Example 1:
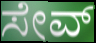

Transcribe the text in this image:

ಸೇವ್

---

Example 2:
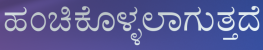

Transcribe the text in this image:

ಹಂಚಿಕೊಳ್ಳಲಾಗುತ್ತದೆ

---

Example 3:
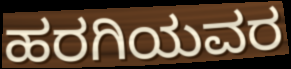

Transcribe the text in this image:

ಹರಗಿಯವರ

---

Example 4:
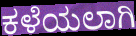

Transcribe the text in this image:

ಕಳೆಯಲಾಗಿ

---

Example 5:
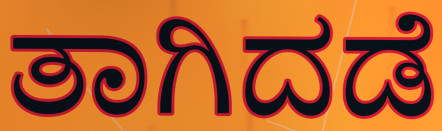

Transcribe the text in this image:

ತಾಗಿದಡೆ